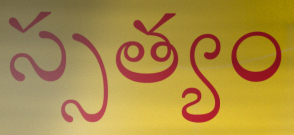
స్సత్యం